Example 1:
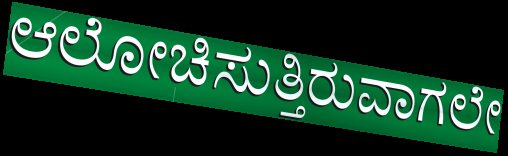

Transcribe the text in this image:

ಆಲೋಚಿಸುತ್ತಿರುವಾಗಲೇ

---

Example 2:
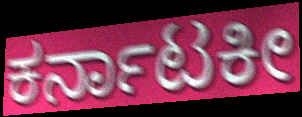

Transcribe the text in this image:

ಕರ್ನಾಟಕೀ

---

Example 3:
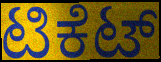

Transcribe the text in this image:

ಟಿಕೆಟ್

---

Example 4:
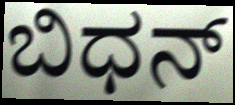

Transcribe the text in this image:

ಬಿಧನ್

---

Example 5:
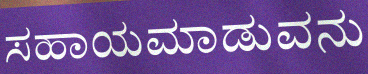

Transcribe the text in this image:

ಸಹಾಯಮಾಡುವನು